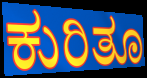
ಕುರಿತೂ